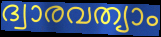
ദ്വാരവത്യാം